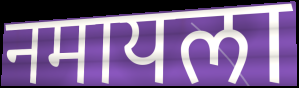
नमायला